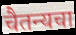
चैतन्यचा